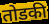
तोडकी